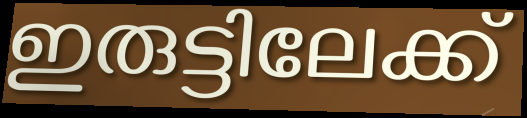
ഇരുട്ടിലേക്ക്